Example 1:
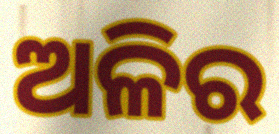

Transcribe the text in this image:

ଅଳିର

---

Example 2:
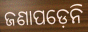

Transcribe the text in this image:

ଜଣାପଡ଼େନି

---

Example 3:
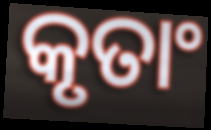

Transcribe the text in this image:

କୃତାଂ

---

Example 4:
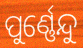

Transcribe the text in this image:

ପୁର୍ଣ୍ଣେନ୍ଦୁ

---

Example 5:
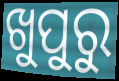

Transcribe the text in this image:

ଖୁପୁରୁ